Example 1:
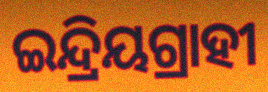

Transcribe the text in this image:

ଇନ୍ଦ୍ରିୟଗ୍ରାହୀ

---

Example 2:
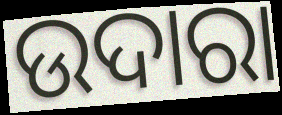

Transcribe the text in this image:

ଉଦାରା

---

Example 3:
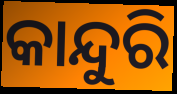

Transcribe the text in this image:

କାନ୍ଦୁରି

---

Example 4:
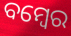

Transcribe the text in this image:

ବମ୍ୱେର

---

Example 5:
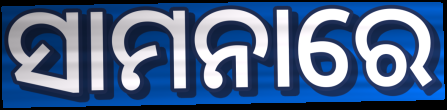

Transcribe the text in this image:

ସାମନାରେ